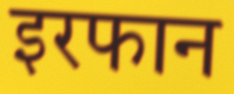
इरफान